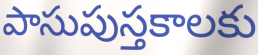
పాసుపుస్తకాలకు